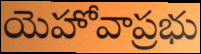
యెహోవాప్రభు